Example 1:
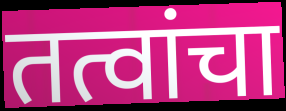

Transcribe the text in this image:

तत्वांचा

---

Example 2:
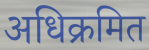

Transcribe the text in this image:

अधिक्रमित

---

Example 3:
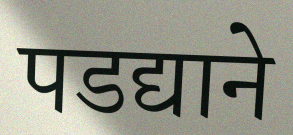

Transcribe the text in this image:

पडद्याने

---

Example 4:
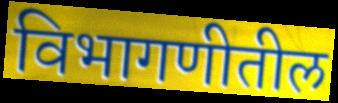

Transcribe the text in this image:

विभागणीतील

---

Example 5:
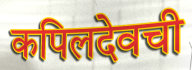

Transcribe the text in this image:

कपिलदेवची